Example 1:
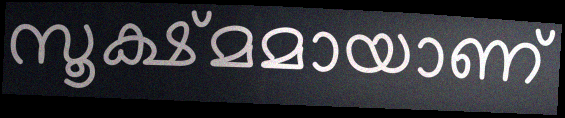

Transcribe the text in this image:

സൂക്ഷ്മമായാണ്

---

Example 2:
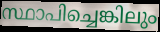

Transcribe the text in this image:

സ്ഥാപിച്ചെങ്കിലും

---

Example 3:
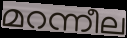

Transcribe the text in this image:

മറന്നീല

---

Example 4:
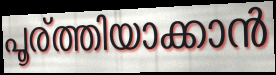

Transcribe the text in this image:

പൂര്ത്തിയാക്കാൻ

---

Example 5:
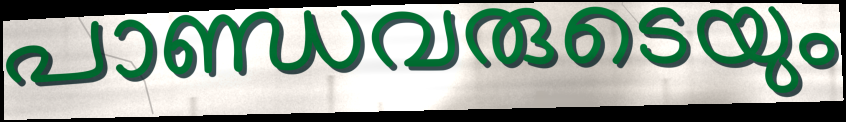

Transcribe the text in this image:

പാണ്ഡവരുടെയും